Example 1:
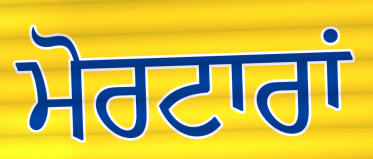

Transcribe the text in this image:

ਮੋਰਟਾਰਾਂ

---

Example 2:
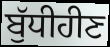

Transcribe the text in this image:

ਬੁੱਧੀਹੀਣ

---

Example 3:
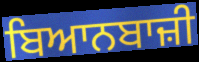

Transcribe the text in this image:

ਬਿਆਨਬਾਜ਼ੀ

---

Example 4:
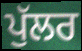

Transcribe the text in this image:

ਪੁੱਲਰ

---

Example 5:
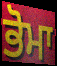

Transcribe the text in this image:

ਭੋਮਾ